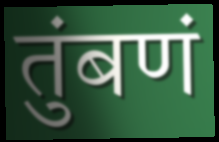
तुंबणं